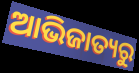
ଆଭିଜାତ୍ୟରୁ